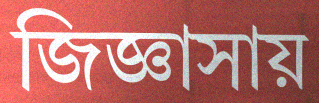
জিজ্ঞাসায়